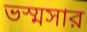
ভস্মসার